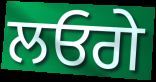
ਲਓਗੇ